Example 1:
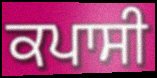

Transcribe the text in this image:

ਕਪਾਸੀ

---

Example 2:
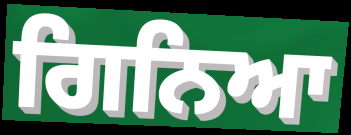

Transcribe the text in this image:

ਗਿਨਿਆ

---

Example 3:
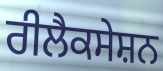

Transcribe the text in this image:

ਰੀਲੈਕਸੇਸ਼ਨ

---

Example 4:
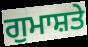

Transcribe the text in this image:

ਗੁਮਾਸ਼ਤੇ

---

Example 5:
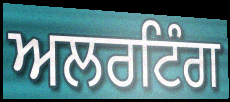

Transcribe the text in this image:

ਅਲਰਟਿੰਗ